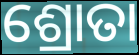
ଶ୍ରୋତା